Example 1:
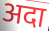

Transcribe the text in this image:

अदा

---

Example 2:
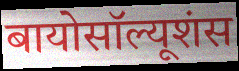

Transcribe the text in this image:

बायोसॉल्यूशंस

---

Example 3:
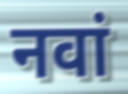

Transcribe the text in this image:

नवां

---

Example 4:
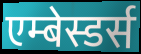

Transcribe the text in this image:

एम्बेस्डर्स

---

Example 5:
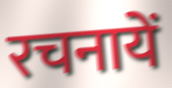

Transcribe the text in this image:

रचनायें